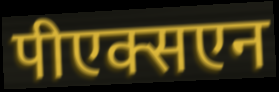
पीएक्सएन